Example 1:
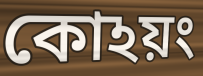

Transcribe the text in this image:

কোঽয়ং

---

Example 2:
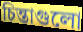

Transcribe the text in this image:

চিন্তাগুলো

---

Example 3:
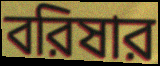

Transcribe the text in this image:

বরিষার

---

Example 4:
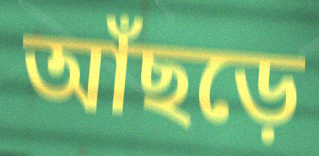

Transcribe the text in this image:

আঁছড়ে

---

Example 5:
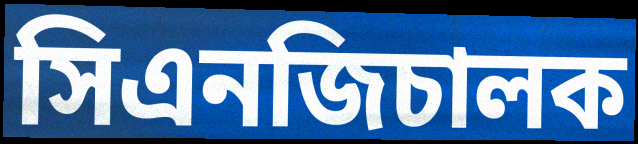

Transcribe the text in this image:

সিএনজিচালক